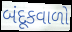
બંદૂકવાળો